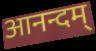
आनन्दम्